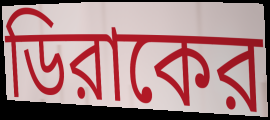
ডিরাকের